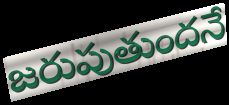
జరుపుతుందనే